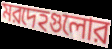
মরদেহগুলোর